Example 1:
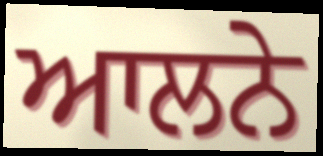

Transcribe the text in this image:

ਆਲਨੇ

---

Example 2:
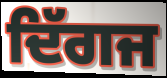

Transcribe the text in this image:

ਦਿੱਗਜ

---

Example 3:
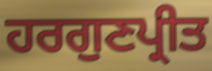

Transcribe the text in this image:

ਹਰਗੁਣਪ੍ਰੀਤ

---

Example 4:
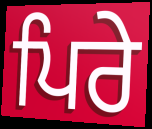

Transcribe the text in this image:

ਪਿਰੇ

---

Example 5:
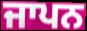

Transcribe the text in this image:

ਜਾਪਨ